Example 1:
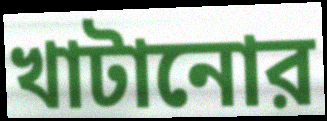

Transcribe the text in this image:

খাটানোর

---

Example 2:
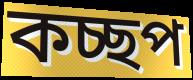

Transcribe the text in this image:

কচ্ছপ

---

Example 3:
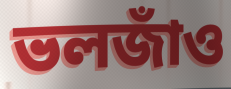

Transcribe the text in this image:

ভলজাঁও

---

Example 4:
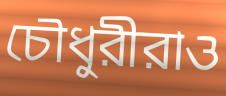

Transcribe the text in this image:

চৌধুরীরাও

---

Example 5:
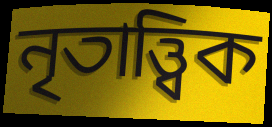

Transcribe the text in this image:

নৃতাত্ত্বিক